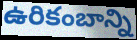
ఉరికంబాన్ని